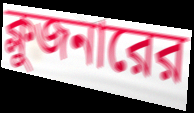
ক্লুজনারের